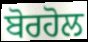
ਬੋਰਹੋਲ